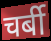
चर्बी